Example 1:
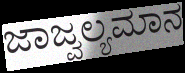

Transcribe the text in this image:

ಜಾಜ್ವಲ್ಯಮಾನ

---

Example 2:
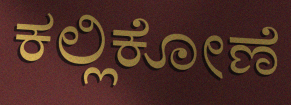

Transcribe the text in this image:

ಕಲ್ಲಿಕೋಣೆ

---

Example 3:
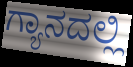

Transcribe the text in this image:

ಗ್ಯಾನದಲ್ಲಿ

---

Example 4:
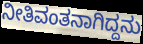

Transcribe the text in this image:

ನೀತಿವಂತನಾಗಿದ್ದನು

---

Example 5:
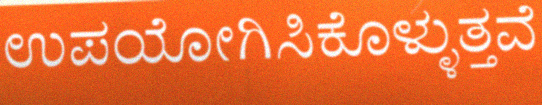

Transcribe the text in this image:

ಉಪಯೋಗಿಸಿಕೊಳ್ಳುತ್ತವೆ